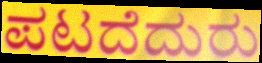
ಪಟದೆದುರು